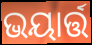
ଭୟାର୍ତ୍ତ